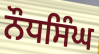
ਨੌਧਸਿੰਘ